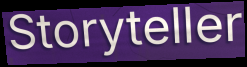
Storyteller